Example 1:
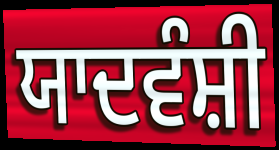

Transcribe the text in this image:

ਯਾਦਵੰਸ਼ੀ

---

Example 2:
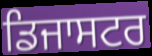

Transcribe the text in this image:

ਡਿਜਾਸਟਰ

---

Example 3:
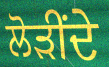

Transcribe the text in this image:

ਲੋੜੀਂਦੇ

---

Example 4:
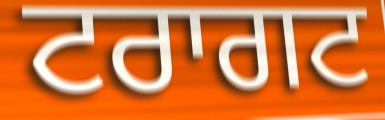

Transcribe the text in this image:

ਟਰਾਗਟ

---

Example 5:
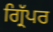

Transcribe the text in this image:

ਗ੍ਰਿੱਪਰ